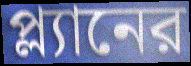
প্ল্যানের